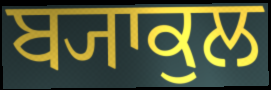
ਬ੍ਯਾਕੁਲ